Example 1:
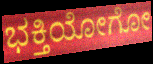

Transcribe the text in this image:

ಭಕ್ತಿಯೋಗೋ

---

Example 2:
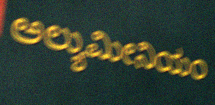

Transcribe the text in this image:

ಅಲ್ಯುಮೀನಿಯಂ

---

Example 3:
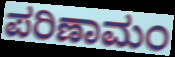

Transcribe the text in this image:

ಪರಿಣಾಮಂ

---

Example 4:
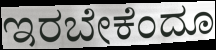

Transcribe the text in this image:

ಇರಬೇಕೆಂದೂ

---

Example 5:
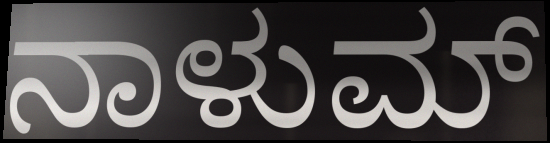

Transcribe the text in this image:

ನಾಳುಮ್